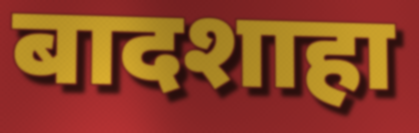
बादशाहा